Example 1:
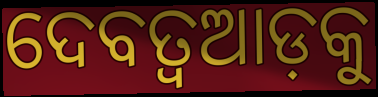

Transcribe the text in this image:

ଦେବତ୍ୱଆଡ଼କୁ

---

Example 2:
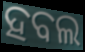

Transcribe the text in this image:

ହବଲ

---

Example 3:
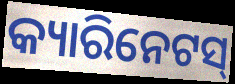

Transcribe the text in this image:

କ୍ୟାରିନେଟସ୍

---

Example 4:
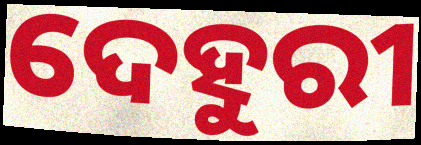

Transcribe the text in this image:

ଦେହୁରୀ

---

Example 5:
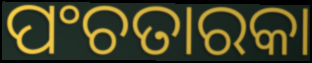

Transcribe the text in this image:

ପଂଚତାରକା